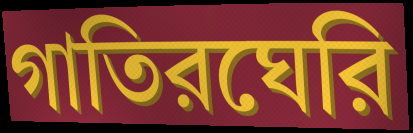
গাতিরঘেরি